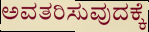
ಅವತರಿಸುವುದಕ್ಕೆ